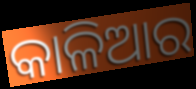
କାଳିଆର